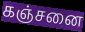
கஞ்சனை